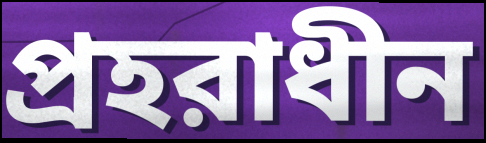
প্রহরাধীন